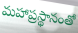
మహాప్రస్థానంతో